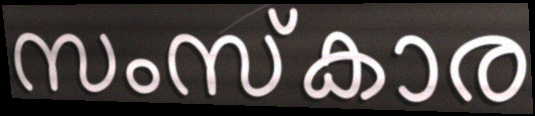
സംസ്കാര